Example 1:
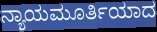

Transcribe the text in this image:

ನ್ಯಾಯಮೂರ್ತಿಯಾದ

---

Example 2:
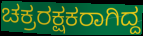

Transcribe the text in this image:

ಚಕ್ರರಕ್ಷಕರಾಗಿದ್ದ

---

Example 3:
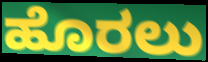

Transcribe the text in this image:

ಹೊರಲು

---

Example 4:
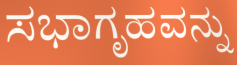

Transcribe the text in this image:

ಸಭಾಗೃಹವನ್ನು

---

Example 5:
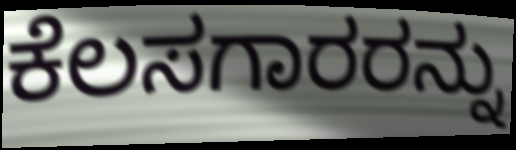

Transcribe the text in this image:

ಕೆಲಸಗಾರರನ್ನು